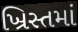
ખ્રિસ્તમાં